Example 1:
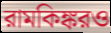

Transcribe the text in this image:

রামকিঙ্করও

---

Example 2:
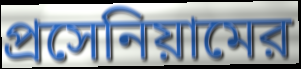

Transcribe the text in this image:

প্রসেনিয়ামের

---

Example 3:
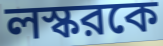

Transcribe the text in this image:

লস্করকে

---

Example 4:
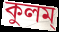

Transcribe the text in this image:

কুলম্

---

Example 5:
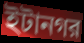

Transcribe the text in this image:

ইটানগর